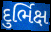
દુર્ભિક્ષ